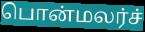
பொன்மலர்ச்